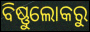
ବିଷ୍ଣୁଲୋକରୁ